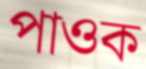
পাওক